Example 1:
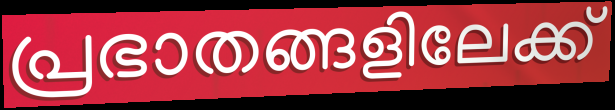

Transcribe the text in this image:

പ്രഭാതങ്ങളിലേക്ക്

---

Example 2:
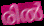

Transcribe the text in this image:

രിൽ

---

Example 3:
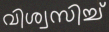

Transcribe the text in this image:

വിശ്വസിച്ച്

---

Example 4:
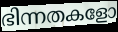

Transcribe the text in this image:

ഭിന്നതകളോ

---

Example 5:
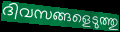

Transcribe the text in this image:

ദിവസങ്ങളെടുത്തു